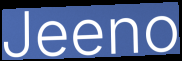
Jeeno